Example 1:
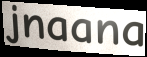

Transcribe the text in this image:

jnaana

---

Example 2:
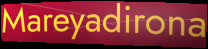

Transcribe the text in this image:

Mareyadirona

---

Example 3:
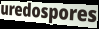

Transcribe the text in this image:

uredospores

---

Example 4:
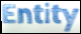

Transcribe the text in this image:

Entity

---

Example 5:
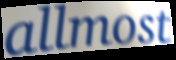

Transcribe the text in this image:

allmost